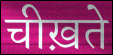
चीख़ते